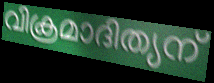
വിക്രമാദിത്യന്